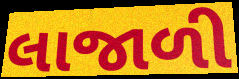
લાજાળી